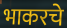
भाकरचे